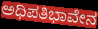
ಅಧಿಪತಿಭಾವೇನ